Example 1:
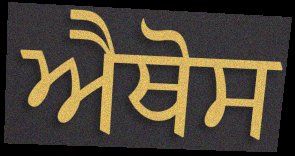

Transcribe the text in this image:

ਐਥੋਸ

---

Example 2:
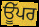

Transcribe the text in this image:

ਊੱਪਰ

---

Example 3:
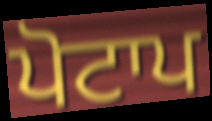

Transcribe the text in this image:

ਪੋਟਾਪ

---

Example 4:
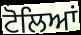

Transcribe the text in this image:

ਟੋਲਿਆਂ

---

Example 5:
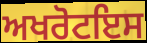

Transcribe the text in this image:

ਅਖਰੋਟਇਸ